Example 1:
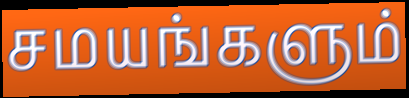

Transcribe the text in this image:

சமயங்களும்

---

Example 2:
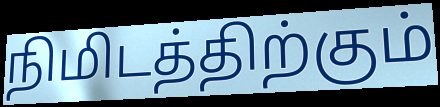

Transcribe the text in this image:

நிமிடத்திற்கும்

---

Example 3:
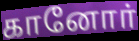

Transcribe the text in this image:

கானோர்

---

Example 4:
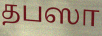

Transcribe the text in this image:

தபஸா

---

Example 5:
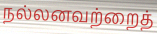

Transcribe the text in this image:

நல்லனவற்றைத்